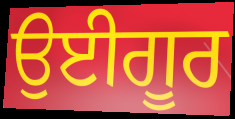
ਉਈਗੂਰ